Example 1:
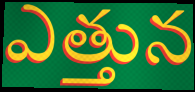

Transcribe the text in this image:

ఎత్తున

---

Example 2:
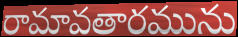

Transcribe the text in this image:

రామావతారమును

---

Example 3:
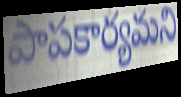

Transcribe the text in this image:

పాపకార్యమని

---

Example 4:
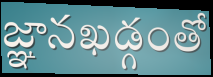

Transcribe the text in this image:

జ్ఞానఖడ్గంతో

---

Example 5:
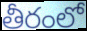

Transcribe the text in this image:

తీరంలో